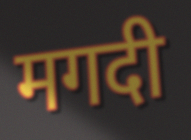
मगदी